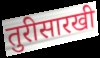
तुरीसारखी